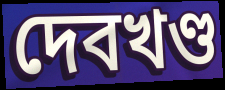
দেবখণ্ড